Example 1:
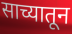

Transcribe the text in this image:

साच्यातून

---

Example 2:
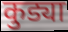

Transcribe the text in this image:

कुड्या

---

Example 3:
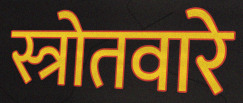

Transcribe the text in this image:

स्त्रोतवारे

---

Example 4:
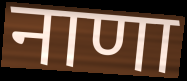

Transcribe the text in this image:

नाणा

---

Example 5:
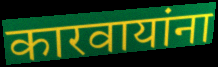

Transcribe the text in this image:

कारवायांना